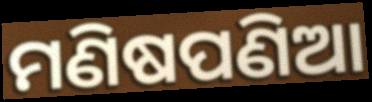
ମଣିଷପଣିଆ